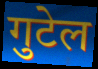
गुटेल